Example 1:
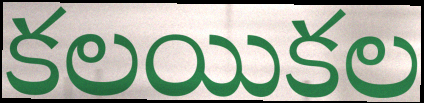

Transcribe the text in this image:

కలయికల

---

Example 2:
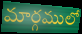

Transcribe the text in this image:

మార్గములో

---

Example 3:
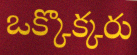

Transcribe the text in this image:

ఒక్కొక్కరు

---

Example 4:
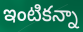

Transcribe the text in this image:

ఇంటికన్నా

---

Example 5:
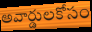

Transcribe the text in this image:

అవార్డులకోసం